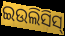
ଇଉଲିସିସ୍